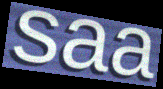
saa